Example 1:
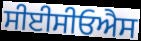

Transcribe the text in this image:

ਸੀਈਸੀਓਐਸ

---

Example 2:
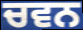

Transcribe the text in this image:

ਚਵਨ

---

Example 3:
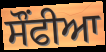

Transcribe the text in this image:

ਸੌਂਫੀਆ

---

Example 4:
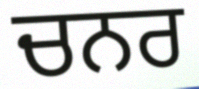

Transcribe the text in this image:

ਚਨਰ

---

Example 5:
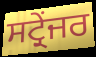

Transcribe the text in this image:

ਸਟ੍ਰੇਂਜਰ